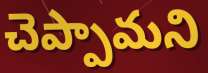
చెప్పామని